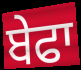
ਬੇਫਾ